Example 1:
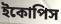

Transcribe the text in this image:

ইকোপিস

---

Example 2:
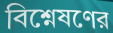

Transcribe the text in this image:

বিশ্নেষণের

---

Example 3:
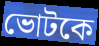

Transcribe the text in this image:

ভোটকে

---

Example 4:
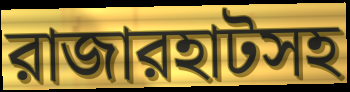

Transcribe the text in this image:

রাজারহাটসহ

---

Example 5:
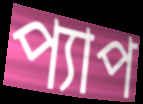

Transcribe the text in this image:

প্যাপ